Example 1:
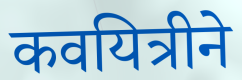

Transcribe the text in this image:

कवयित्रीने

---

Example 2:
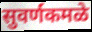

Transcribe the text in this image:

सुवर्णकमळे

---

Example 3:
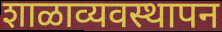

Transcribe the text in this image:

शाळाव्यवस्थापन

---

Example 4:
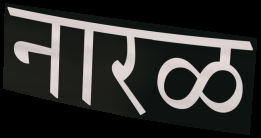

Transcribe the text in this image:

नारळ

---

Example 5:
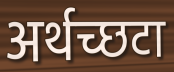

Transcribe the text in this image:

अर्थच्छटा